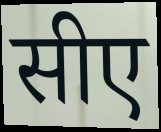
सीए